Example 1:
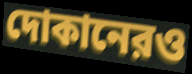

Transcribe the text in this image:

দোকানেরও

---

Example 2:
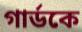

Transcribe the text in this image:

গার্ডকে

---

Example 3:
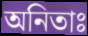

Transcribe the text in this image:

অনিতাঃ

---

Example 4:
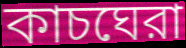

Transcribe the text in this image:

কাচঘেরা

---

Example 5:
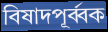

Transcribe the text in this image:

বিষাদপূর্ব্বক